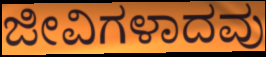
ಜೀವಿಗಳಾದವು